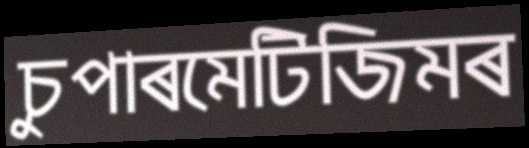
চুপাৰমেটিজিমৰ